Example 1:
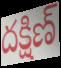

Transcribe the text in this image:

దక్షిణ్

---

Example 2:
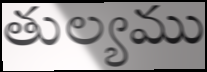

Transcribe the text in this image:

తుల్యము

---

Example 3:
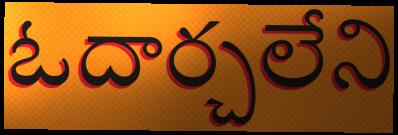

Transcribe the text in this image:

ఓదార్చలేని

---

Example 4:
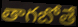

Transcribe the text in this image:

తాగబోతే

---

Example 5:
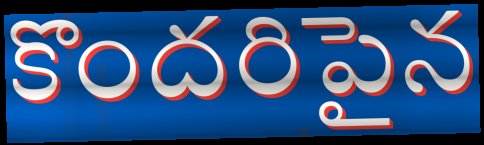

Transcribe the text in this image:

కొందరిపైన